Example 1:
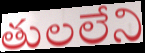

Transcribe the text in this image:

తులలేని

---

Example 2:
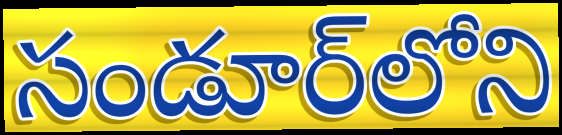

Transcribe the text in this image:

సండూర్‌లోని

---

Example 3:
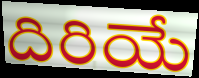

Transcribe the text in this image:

దిరియే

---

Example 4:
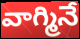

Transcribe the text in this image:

వాగ్మినే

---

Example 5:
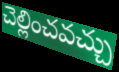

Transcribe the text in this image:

చెల్లించవచ్చు